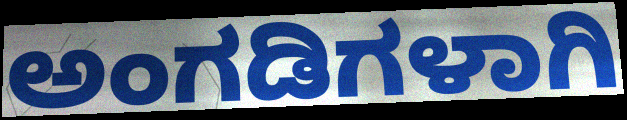
ಅಂಗಡಿಗಳಾಗಿ